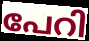
പേറി